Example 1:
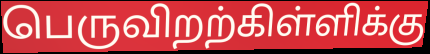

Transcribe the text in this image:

பெருவிறற்கிள்ளிக்கு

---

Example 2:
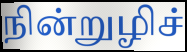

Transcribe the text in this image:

நின்றுழிச்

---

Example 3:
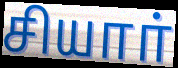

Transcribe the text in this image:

சியார்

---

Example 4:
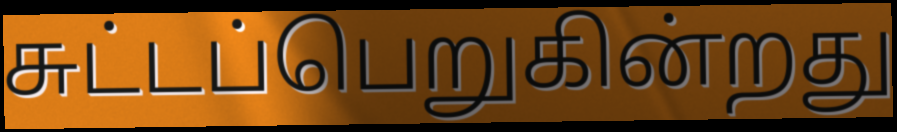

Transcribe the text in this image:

சுட்டப்பெறுகின்றது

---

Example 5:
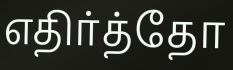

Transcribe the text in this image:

எதிர்த்தோ